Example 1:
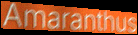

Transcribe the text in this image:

Amaranthus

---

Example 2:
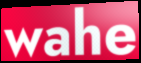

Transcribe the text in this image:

wahe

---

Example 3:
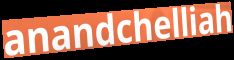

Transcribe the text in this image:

anandchelliah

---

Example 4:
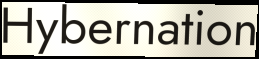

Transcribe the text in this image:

Hybernation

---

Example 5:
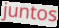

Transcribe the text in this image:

juntos